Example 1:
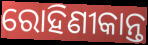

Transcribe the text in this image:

ରୋହିଣୀକାନ୍ତ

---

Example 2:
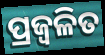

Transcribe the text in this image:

ପ୍ରଜ୍ୱଳିତ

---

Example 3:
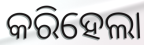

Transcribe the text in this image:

କରିହେଲା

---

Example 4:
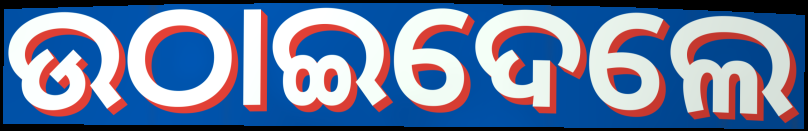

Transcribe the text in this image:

ଉଠାଇଦେଲେ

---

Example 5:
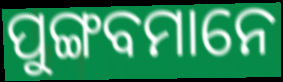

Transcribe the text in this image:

ପୁଙ୍ଗବମାନେ